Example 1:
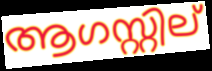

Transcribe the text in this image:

ആഗസ്റ്റില്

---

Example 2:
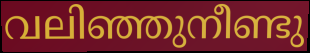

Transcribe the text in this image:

വലിഞ്ഞുനീണ്ടു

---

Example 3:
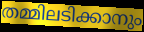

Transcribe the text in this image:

തമ്മിലടിക്കാനും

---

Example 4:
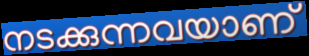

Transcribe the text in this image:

നടക്കുന്നവയാണ്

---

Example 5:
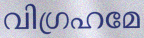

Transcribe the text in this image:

വിഗ്രഹമേ